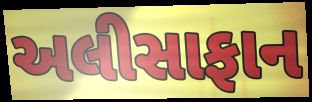
અલીસાફાન